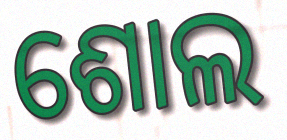
ଶୋଲ